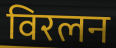
विरलन